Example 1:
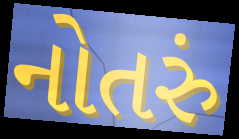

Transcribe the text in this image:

નોતરું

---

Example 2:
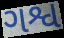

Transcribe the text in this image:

ગશ્વ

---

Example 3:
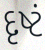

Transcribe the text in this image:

દૃષ્ટં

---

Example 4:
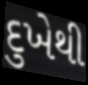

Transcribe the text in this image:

દુખેથી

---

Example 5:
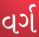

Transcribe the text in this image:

વર્ગ